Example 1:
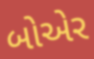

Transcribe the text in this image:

બોએર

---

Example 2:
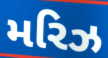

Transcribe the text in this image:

મરિઝ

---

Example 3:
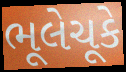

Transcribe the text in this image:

ભૂલેચૂકે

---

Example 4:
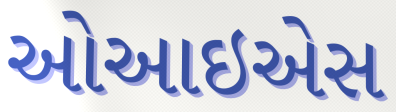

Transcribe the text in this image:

ઓઆઇએસ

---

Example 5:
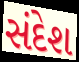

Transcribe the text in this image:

સંદેશ